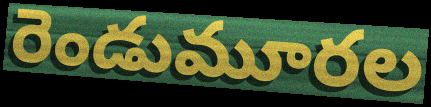
రెండుమూరల